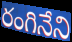
రంగినేని